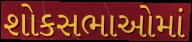
શોકસભાઓમાં